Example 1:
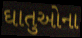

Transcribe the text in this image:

ઘાતુઓના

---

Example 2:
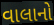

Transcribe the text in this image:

વાલાનો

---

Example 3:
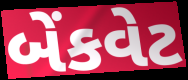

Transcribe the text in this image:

બેંકવેટ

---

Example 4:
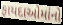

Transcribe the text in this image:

ફાયદાઓમાંનો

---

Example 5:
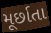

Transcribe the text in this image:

મૂર્છાતા